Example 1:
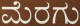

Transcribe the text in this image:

ಮೆರಗು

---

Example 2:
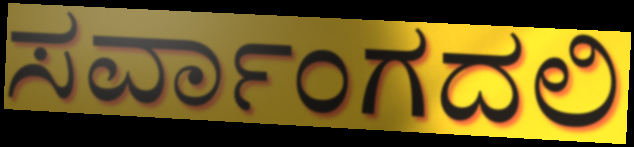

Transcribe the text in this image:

ಸರ್ವಾಂಗದಲಿ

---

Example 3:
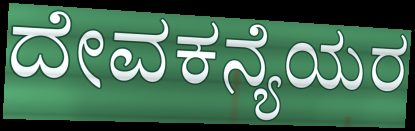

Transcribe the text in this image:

ದೇವಕನ್ಯೆಯರ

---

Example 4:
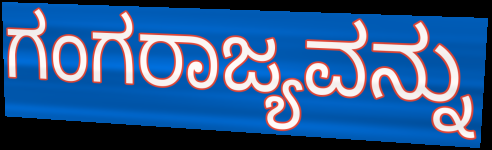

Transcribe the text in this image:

ಗಂಗರಾಜ್ಯವನ್ನು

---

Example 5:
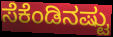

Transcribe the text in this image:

ಸೆಕೆಂಡಿನಷ್ಟು